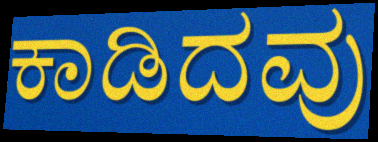
ಕಾಡಿದವು